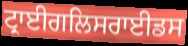
ਟ੍ਰਾਈਗਲਿਸਰਾਈਡਸ